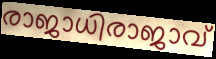
രാജാധിരാജാവ്